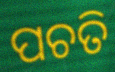
ପଚତି